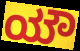
ಯೌ